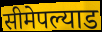
सीमेपल्याड